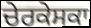
ਚੇਰਕੇਸਕਾ